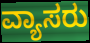
ವ್ಯಾಸರು